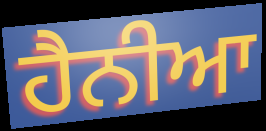
ਹੈਨੀਆ